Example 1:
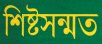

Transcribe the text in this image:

শিষ্টসন্মত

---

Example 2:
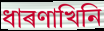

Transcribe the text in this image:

ধাৰণাখিনি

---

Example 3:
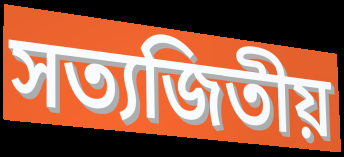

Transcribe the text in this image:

সত্যজিতীয়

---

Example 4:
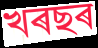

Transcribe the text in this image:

খৰছৰ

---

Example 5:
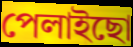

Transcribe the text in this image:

পেলাইছো